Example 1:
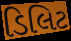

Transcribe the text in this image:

ડિલિટ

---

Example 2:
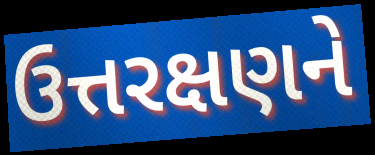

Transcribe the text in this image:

ઉત્તરક્ષણને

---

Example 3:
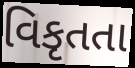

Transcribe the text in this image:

વિકૃતતા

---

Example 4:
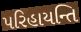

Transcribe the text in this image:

પરિહાયન્તિ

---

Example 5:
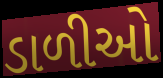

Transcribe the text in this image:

ડાળીઓ